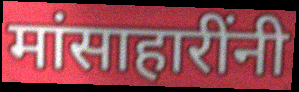
मांसाहारींनी